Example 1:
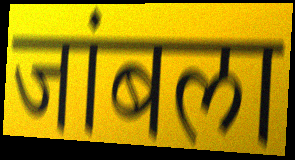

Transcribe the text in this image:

जांबला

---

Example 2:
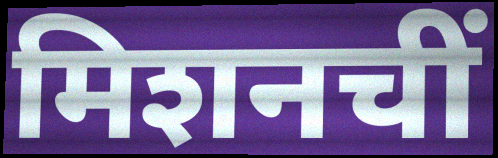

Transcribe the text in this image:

मिशनचीं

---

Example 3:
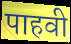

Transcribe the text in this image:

पाहवी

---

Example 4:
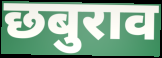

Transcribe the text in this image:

छबुराव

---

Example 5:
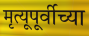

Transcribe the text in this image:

मृत्यूपूर्वीच्या